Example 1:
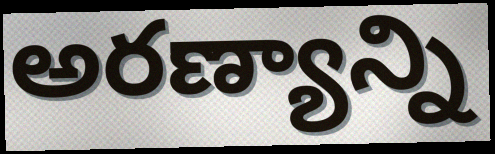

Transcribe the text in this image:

అరణ్యాన్ని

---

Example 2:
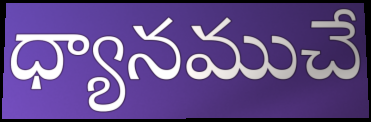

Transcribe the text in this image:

ధ్యానముచే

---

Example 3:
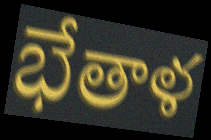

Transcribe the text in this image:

భేతాళ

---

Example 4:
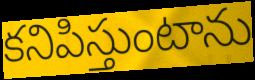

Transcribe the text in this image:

కనిపిస్తుంటాను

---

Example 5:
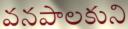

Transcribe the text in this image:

వనపాలకుని